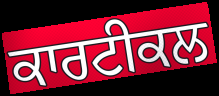
ਕਾਰਟੀਕਲ